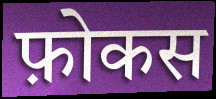
फ़ोकस